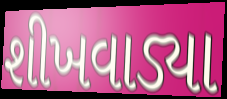
શીખવાડ્યા